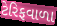
ટેરિફવાળા